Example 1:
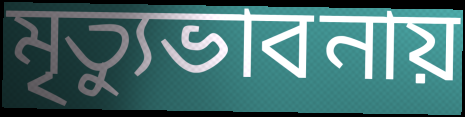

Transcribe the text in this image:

মৃত্যুভাবনায়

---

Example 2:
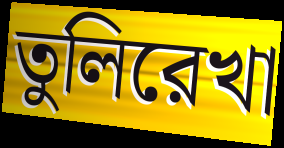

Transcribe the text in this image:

তুলিরেখা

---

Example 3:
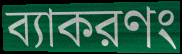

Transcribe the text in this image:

ব্যাকরণং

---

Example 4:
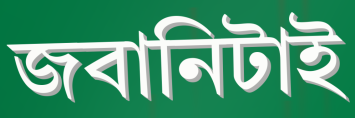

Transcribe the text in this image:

জবানিটাই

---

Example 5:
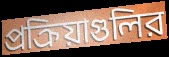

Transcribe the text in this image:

প্রক্রিয়াগুলির